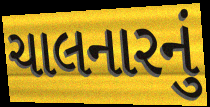
ચાલનારનું